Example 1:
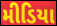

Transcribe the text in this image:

મીડિયા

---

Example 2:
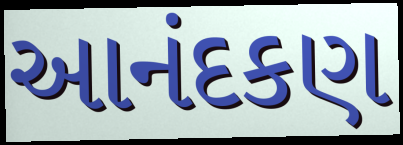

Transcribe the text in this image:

આનંદકણ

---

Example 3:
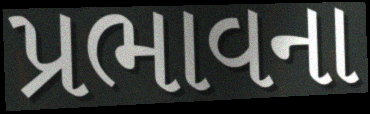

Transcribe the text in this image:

પ્રભાવના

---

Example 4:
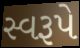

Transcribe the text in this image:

સ્વરૂપે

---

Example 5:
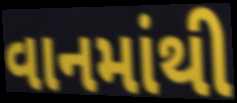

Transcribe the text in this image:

વાનમાંથી